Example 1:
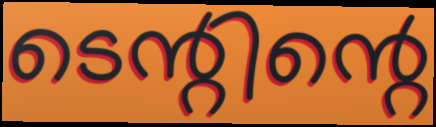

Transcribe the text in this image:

ടെന്റിന്റെ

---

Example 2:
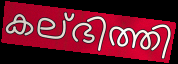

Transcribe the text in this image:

കല്ഭിത്തി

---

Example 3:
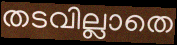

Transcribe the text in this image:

തടവില്ലാതെ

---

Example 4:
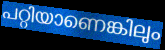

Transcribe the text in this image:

പറ്റിയാണെങ്കിലും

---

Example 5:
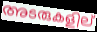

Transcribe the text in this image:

അടരുകളില്